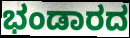
ಭಂಡಾರದ